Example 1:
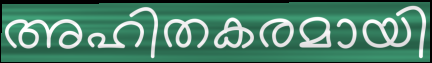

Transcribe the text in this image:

അഹിതകരമായി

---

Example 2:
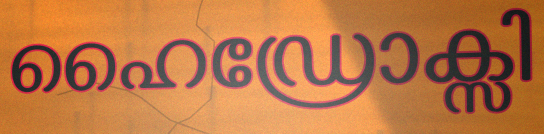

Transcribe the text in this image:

ഹൈഡ്രോക്സി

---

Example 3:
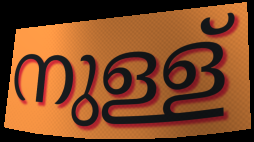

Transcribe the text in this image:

നുള്ള്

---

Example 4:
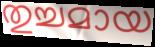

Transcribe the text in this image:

തുച്ചമായ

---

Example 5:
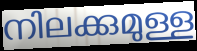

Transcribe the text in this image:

നിലക്കുമുള്ള